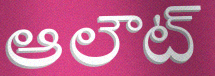
ఆలౌట్